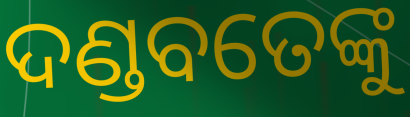
ଦଣ୍ଡବତେଙ୍କୁ